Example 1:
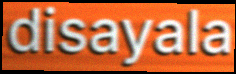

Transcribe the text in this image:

disayala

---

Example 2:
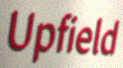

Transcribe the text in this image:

Upfield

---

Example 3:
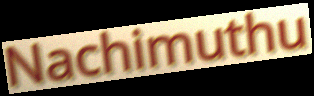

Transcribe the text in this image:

Nachimuthu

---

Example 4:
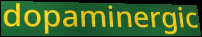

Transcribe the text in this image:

dopaminergic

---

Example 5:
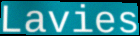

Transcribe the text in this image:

Lavies